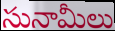
సునామీలు